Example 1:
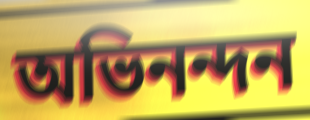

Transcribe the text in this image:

অভিনন্দন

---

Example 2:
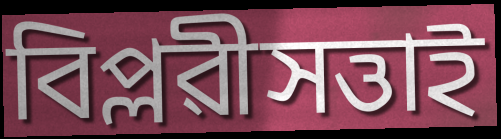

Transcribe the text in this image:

বিপ্লৱীসত্তাই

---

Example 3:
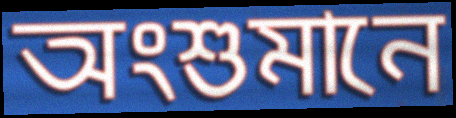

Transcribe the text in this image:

অংশুমানে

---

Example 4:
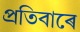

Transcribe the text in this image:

প্ৰতিবাৰে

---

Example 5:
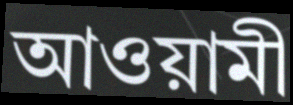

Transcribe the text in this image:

আওয়ামী